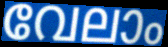
വേലാം